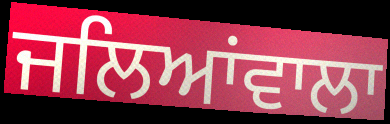
ਜਲਿਆਂਵਾਲਾ